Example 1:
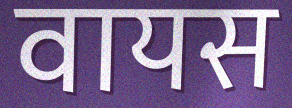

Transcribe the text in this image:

वायस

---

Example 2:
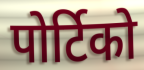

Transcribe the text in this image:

पोर्टिको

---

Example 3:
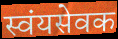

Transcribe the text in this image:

स्वंयसेवक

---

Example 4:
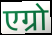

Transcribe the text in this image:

एग्रो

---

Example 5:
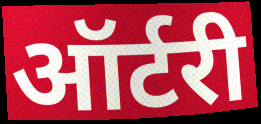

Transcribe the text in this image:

ऑर्टरी